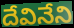
దేవినేని